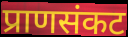
प्राणसंकट